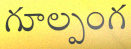
గూల్పంగ